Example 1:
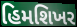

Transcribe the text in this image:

હિમશિખર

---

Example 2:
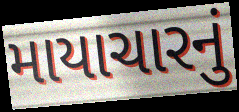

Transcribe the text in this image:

માયાચારનું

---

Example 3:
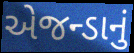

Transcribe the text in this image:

એજન્ડાનું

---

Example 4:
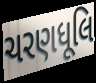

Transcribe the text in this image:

ચરણધૂલિ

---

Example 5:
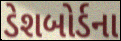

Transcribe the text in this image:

ડેશબોર્ડના